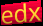
edx